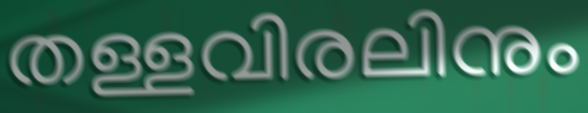
തള്ളവിരലിനും